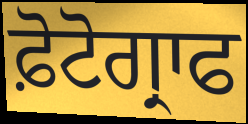
ਫ਼ੋਟੋਗ੍ਰਾਫ